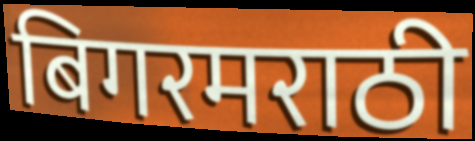
बिगरमराठी